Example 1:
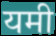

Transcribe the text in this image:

यमी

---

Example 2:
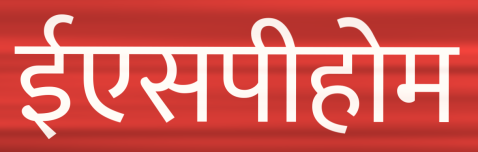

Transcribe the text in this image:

ईएसपीहोम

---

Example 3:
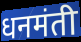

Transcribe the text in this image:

धनमंती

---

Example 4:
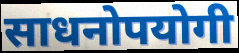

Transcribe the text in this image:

साधनोपयोगी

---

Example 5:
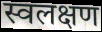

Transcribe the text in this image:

स्वलक्षण